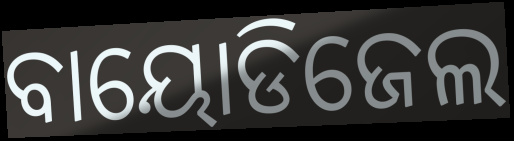
ବାୟୋଡିଜେଲ